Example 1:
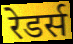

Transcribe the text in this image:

रेडर्स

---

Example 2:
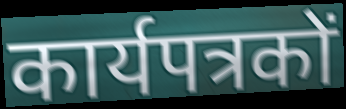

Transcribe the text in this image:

कार्यपत्रकों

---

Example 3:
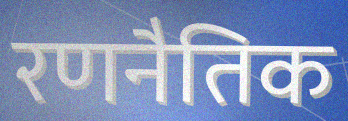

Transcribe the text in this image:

रणनैतिक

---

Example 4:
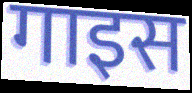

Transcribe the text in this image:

गाइस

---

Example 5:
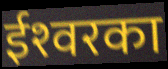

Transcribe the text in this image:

ईश्वरका